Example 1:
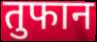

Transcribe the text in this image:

तुफान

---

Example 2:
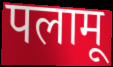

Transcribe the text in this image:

पलामू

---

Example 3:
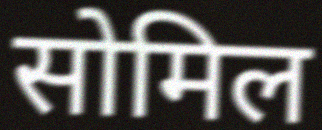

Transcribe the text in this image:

सोमिल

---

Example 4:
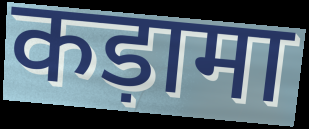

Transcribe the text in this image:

कड़ामा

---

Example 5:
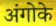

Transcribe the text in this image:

अंगोके